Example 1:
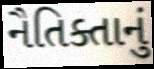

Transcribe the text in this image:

નૈતિક્તાનું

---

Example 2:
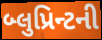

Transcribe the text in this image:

બ્લુપ્રિન્ટની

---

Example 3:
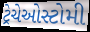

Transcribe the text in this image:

ટ્રેચેઓસ્ટોમી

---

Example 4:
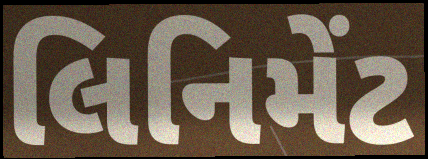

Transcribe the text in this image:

લિનિમેંટ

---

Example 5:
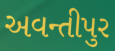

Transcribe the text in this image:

અવન્તીપુર